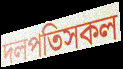
দলপতিসকল